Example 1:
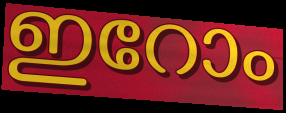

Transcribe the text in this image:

ഇറോം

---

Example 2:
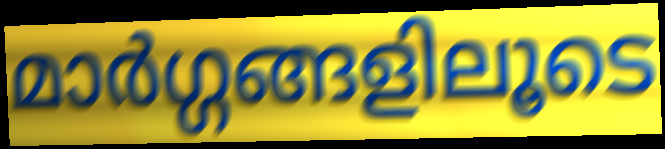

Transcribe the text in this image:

മാർഗ്ഗങ്ങളിലൂടെ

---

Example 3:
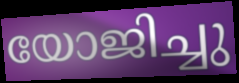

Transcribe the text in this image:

യോജിച്ചു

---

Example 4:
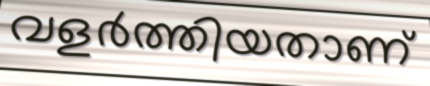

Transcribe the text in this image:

വളർത്തിയതാണ്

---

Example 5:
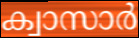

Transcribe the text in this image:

ക്വാസാർ